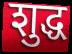
शुद्ध